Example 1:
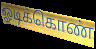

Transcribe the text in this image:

ஓடிக்கொண்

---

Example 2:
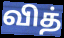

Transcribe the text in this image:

வித்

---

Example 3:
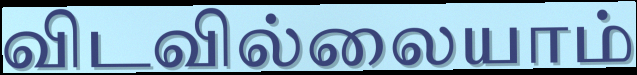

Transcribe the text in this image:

விடவில்லையாம்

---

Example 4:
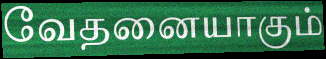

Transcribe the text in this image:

வேதனையாகும்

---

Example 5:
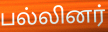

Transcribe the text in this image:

பல்லினர்